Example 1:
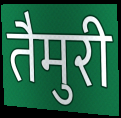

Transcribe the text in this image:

तैमुरी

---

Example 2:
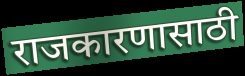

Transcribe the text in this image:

राजकारणासाठी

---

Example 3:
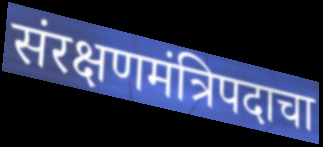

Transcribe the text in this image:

संरक्षणमंत्रिपदाचा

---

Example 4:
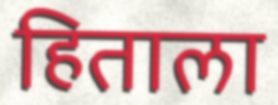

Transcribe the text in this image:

हिताला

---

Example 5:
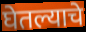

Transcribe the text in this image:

घेतल्याचे